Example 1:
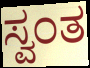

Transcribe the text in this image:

ಸ್ವಂತ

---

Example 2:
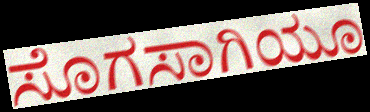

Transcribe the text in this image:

ಸೊಗಸಾಗಿಯೂ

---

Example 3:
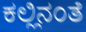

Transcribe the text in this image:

ಕಲ್ಲಿನಂತೆ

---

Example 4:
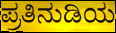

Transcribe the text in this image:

ಪ್ರತಿನುಡಿಯ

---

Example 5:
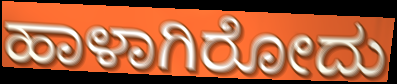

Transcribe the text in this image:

ಹಾಳಾಗಿರೋದು